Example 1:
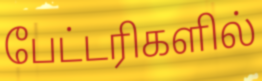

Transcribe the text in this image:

பேட்டரிகளில்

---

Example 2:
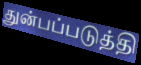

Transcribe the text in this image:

துன்பப்படுத்தி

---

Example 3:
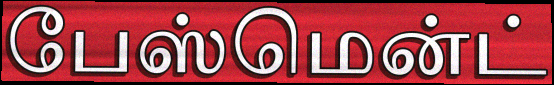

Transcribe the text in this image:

பேஸ்மென்ட்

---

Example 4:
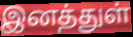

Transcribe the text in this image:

இனத்துள்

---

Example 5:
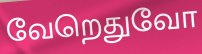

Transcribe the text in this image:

வேறெதுவோ